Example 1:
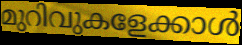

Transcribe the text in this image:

മുറിവുകളേക്കാൾ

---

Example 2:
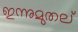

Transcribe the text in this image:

ഇന്നുമുതല്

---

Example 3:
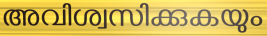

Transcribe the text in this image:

അവിശ്വസിക്കുകയും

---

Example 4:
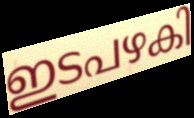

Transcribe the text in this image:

ഇടപഴകി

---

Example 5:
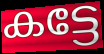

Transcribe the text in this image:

കട്ടേ